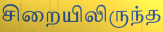
சிறையிலிருந்த